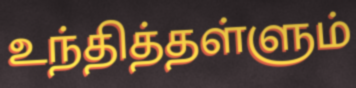
உந்தித்தள்ளும்